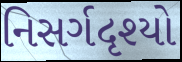
નિસર્ગદૃશ્યો